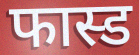
फास्ड